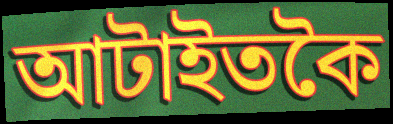
আটাইতকৈ